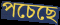
পচেছে